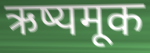
ऋष्यमूक